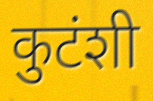
कुटंशी